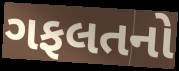
ગફલતનો